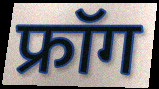
फ्रॉग